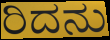
ರಿದನು